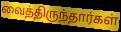
வைத்திருந்தார்கள்